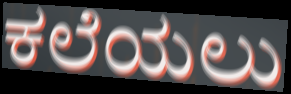
ಕಲೆಯಲು